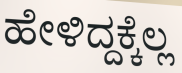
ಹೇಳಿದ್ದಕ್ಕೆಲ್ಲ